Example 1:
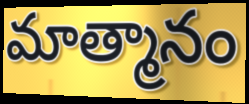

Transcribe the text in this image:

మాత్మానం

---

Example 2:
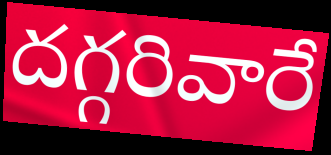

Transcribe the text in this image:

దగ్గరివారే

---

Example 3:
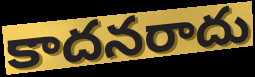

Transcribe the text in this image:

కాదనరాదు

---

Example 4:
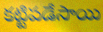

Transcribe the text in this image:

కట్టిపడేసాయి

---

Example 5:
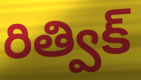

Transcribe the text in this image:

రిత్విక్